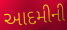
આદમીની